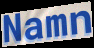
Namn